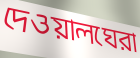
দেওয়ালঘেরা